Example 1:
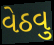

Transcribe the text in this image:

વેઠવુ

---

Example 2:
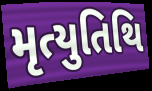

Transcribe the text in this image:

મૃત્યુતિથિ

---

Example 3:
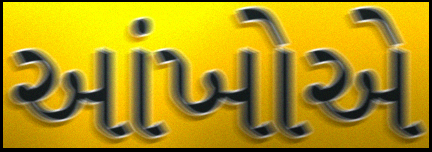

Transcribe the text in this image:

આંખોએ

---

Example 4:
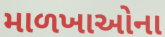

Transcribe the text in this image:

માળખાઓના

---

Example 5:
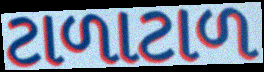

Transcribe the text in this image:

ટાળાટાળ